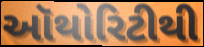
ઑથોરિટીથી